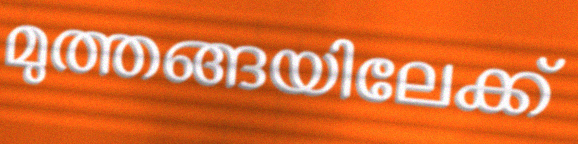
മുത്തങ്ങയിലേക്ക്